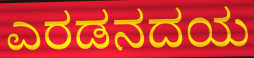
ಎರಡನದಯ